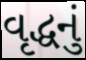
વૃદ્ધનું